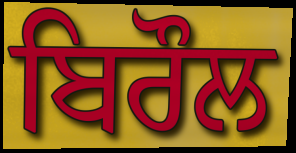
ਬਿਰੌਲ